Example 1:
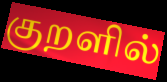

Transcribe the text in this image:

குறளில்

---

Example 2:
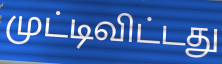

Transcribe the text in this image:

முட்டிவிட்டது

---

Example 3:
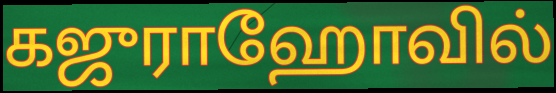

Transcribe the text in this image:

கஜுராஹோவில்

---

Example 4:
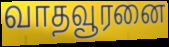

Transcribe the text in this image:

வாதவூரனை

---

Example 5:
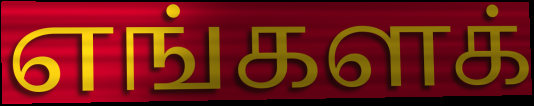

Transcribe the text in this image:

எங்களக்